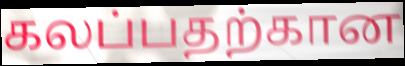
கலப்பதற்கான